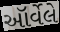
ઑર્વેલે